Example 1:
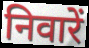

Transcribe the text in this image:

निवारें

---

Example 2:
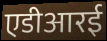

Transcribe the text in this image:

एडीआरई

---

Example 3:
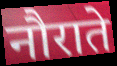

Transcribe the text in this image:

नौराते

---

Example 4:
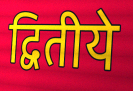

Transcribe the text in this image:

द्वितीये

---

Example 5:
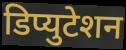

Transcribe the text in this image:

डिप्युटेशन